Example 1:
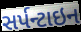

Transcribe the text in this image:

સર્પન્ટાઇન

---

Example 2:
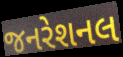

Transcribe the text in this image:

જનરેશનલ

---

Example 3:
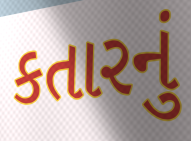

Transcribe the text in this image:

કતારનું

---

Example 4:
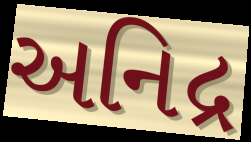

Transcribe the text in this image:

અનિદ્ર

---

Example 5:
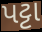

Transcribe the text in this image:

પટ્ટા